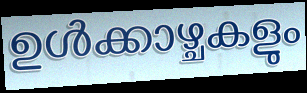
ഉൾക്കാഴ്ചകളും